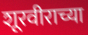
शूरवीराच्या